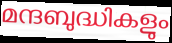
മന്ദബുദ്ധികളും